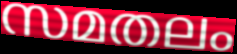
സമതലം